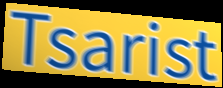
Tsarist